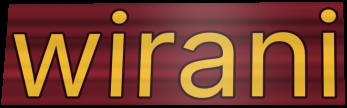
wirani